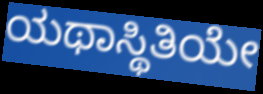
ಯಥಾಸ್ಥಿತಿಯೇ